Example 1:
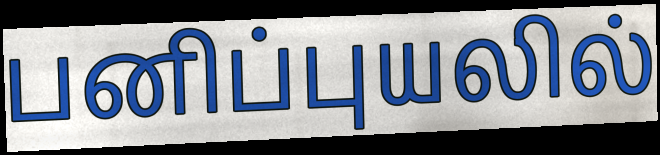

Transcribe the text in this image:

பனிப்புயலில்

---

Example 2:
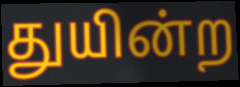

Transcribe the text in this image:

துயின்ற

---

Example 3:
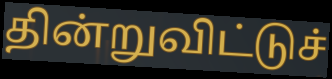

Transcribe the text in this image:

தின்றுவிட்டுச்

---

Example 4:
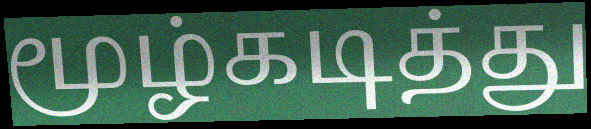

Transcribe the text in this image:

மூழ்கடித்து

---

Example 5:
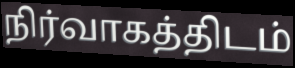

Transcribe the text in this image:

நிர்வாகத்திடம்